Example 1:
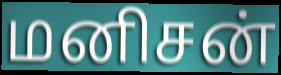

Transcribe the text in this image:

மனிசன்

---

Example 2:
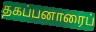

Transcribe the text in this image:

தகப்பனாரைப்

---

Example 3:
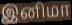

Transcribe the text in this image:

இனிமா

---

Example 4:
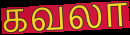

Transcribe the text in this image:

கவலா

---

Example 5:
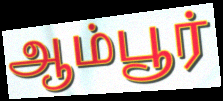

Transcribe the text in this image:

ஆம்பூர்